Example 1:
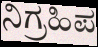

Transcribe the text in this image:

ನಿಗ್ರಹಿಪ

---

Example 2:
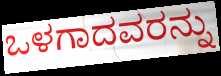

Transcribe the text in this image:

ಒಳಗಾದವರನ್ನು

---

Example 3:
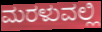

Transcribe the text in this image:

ಮರಳುವಲ್ಲಿ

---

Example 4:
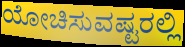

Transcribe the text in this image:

ಯೋಚಿಸುವಷ್ಟರಲ್ಲಿ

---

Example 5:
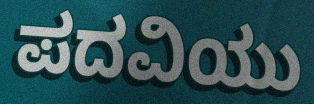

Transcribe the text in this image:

ಪದವಿಯು